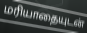
மரியாதையுடன்